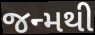
જન્મથી